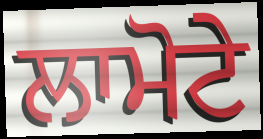
ਲਾਮੋਟੇ